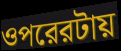
ওপরেরটায়